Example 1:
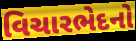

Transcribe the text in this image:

વિચારભેદનો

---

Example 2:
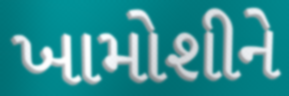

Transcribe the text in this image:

ખામોશીને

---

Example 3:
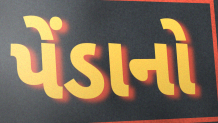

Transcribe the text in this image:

પેંડાનો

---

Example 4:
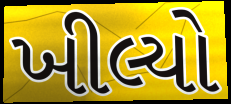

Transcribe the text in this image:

ખીલ્યો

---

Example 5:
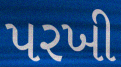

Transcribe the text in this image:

પરખી